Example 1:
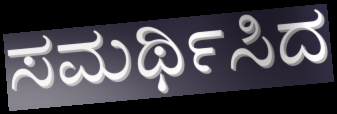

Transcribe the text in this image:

ಸಮರ್ಥಿಸಿದ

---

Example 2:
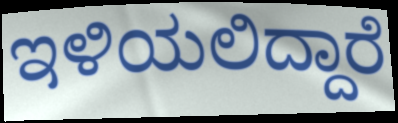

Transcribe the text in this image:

ಇಳಿಯಲಿದ್ದಾರೆ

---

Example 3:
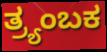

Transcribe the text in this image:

ತ್ರ್ಯಂಬಕ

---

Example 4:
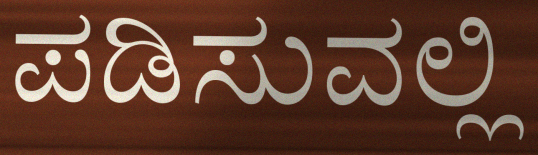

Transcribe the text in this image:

ಪಡಿಸುವಲ್ಲಿ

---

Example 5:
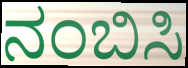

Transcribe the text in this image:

ನಂಬಿಸಿ